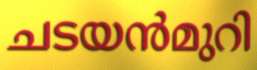
ചടയൻമുറി